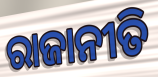
ରାଜାନୀତି